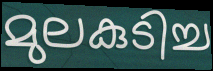
മുലകുടിച്ച